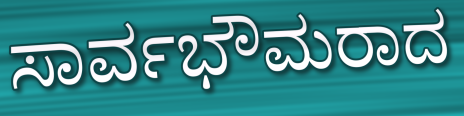
ಸಾರ್ವಭೌಮರಾದ